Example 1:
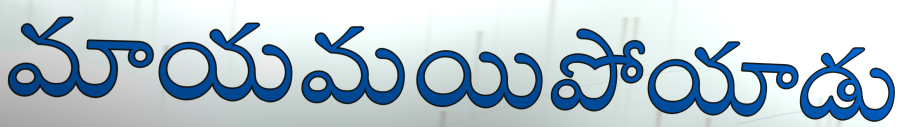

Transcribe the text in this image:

మాయమయిపోయాడు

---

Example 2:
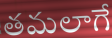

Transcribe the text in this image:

తమలాగే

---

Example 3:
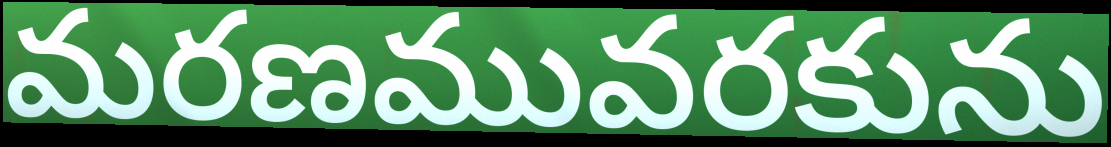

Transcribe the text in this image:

మరణమువరకును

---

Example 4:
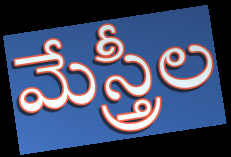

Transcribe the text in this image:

మేస్త్రీల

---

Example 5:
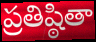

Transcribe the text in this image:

ప్రతిష్ఠితా